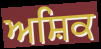
ਅਸ਼ਿਕ